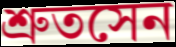
শ্রুতসেন